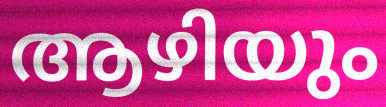
ആഴിയും